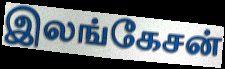
இலங்கேசன்